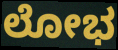
ಲೋಭ